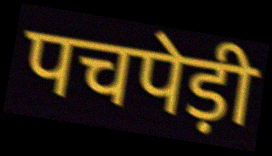
पचपेड़ी